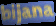
bijana